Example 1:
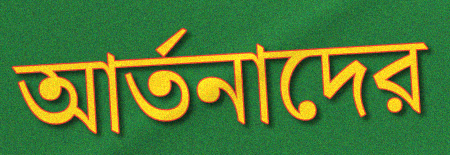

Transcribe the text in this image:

আর্তনাদের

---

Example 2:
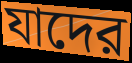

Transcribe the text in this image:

যাদের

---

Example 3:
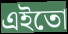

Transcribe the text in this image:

এইতো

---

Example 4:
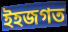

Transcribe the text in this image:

ইহজগত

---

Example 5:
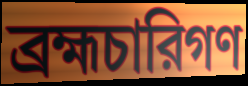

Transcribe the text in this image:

ব্রহ্মচারিগণ